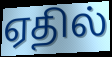
ஏதில்